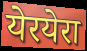
येरयेरा